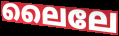
ലൈലേ